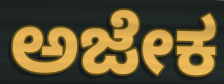
ಅಜೇಕ